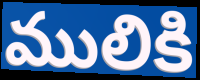
ములికి